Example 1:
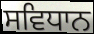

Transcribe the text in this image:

ਸਵਿਧਾਨ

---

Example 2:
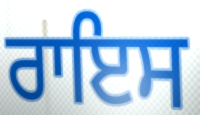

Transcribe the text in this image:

ਰਾਇਸ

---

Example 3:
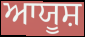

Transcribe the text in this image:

ਆਯੂਸ਼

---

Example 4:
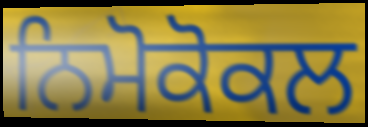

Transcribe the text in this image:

ਨਿਮੋਕੋਕਲ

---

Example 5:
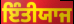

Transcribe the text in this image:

ਇੰਤੀਯਾਜ